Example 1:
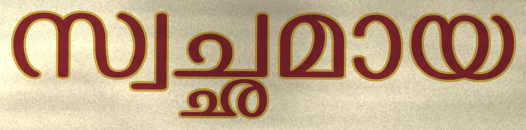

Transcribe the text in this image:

സ്വച്ഛമായ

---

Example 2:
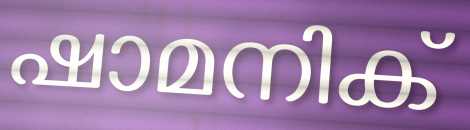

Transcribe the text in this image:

ഷാമനിക്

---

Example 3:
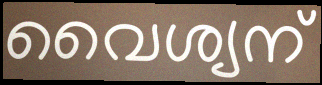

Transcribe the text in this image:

വൈശ്യന്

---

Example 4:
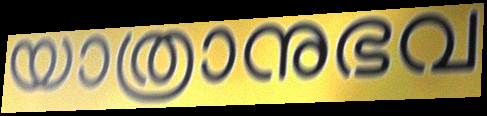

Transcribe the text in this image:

യാത്രാനുഭവ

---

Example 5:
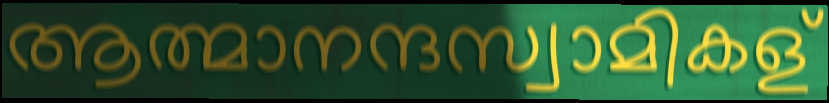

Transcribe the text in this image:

ആത്മാനന്ദസ്വാമികള്